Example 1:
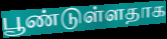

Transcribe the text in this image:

பூண்டுள்ளதாக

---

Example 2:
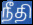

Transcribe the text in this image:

நீதி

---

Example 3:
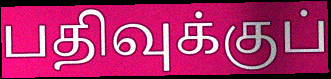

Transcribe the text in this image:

பதிவுக்குப்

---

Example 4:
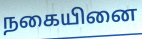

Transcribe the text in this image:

நகையினை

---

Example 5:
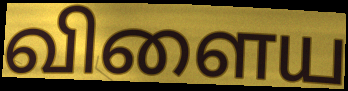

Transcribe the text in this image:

விளைய